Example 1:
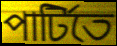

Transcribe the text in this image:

পার্টিতে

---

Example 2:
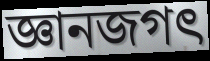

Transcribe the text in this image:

জ্ঞানজগৎ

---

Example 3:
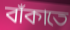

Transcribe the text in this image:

বাঁকাতে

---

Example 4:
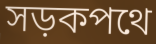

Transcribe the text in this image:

সড়কপথে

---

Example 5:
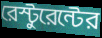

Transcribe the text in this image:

রেস্টুরেন্টের